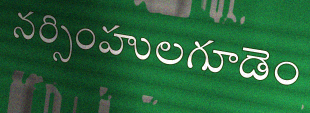
నర్సింహులగూడెం